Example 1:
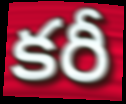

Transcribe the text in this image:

కరీ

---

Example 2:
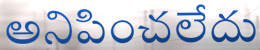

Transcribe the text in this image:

అనిపించలేదు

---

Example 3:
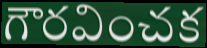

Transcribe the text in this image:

గౌరవించక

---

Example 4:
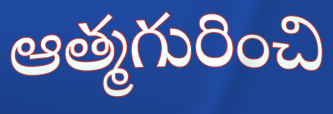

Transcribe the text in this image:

ఆత్మగురించి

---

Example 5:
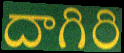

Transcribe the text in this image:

దాగిరి